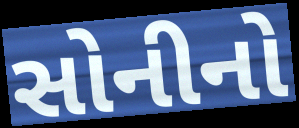
સોનીનો